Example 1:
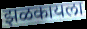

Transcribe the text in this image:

झळकायला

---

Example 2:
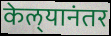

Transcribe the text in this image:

केल्यानंतर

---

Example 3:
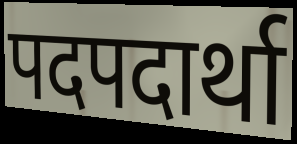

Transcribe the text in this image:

पदपदार्था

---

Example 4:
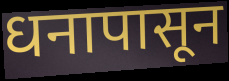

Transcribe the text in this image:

धनापासून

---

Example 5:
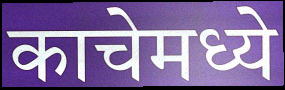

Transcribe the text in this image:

काचेमध्ये